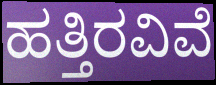
ಹತ್ತಿರವಿವೆ